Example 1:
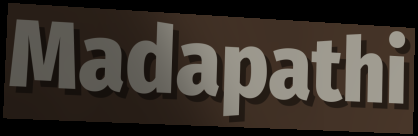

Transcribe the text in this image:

Madapathi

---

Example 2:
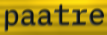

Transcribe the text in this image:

paatre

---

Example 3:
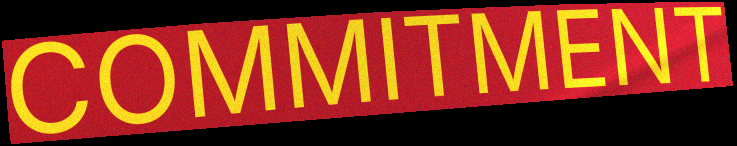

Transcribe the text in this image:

COMMITMENT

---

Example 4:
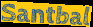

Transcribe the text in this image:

Santbal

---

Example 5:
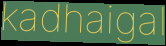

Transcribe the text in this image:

kadhaigal